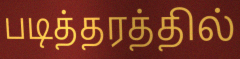
படித்தரத்தில்